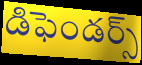
డిఫెండర్స్